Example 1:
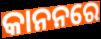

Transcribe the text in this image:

କାନନରେ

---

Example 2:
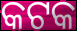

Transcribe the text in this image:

କଟକ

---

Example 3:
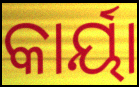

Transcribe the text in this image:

କାର୍ୟା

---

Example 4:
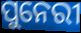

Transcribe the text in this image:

ପୁନେରୀ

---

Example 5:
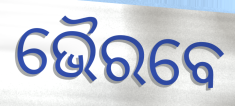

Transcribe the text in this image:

ଭୈରବେ